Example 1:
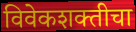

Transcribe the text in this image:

विवेकशक्तीचा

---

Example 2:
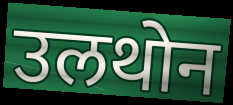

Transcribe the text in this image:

उलथोन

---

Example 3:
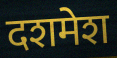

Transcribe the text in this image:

दशमेश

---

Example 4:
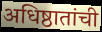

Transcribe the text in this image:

अधिष्ठातांची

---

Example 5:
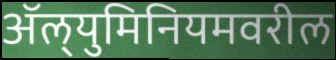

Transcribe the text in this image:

ॲल्युमिनियमवरील